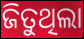
ଜିତୁଥିଲା